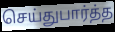
செய்துபார்த்த